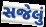
સજેલું